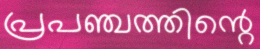
പ്രപഞ്ചത്തിന്റെ